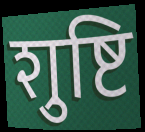
श्रुष्टि